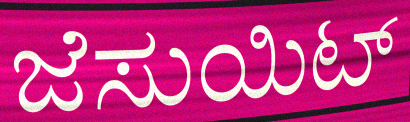
ಜೆಸುಯಿಟ್